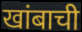
खांबाची